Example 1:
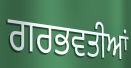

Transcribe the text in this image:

ਗਰਭਵਤੀਆਂ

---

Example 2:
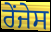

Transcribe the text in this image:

ਰੇਂਜੇਸ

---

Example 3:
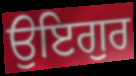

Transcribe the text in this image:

ਉਇਗੁਰ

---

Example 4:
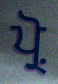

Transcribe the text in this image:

ਪ੍ਰ਼ੋ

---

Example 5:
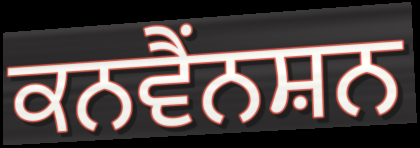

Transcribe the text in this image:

ਕਨਵੈਂਨਸ਼ਨ